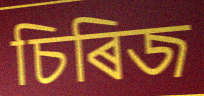
চিৰিজ